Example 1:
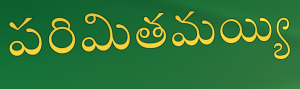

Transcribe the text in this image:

పరిమితమయ్యి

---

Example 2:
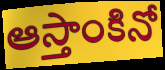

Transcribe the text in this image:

ఆస్తాంకినో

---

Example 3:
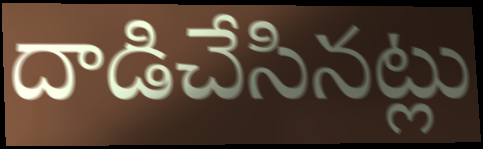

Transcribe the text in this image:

దాడిచేసినట్లు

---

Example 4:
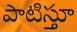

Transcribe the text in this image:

పాటిస్తూ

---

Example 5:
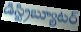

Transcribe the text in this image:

డిస్ట్రిబ్యూటర్